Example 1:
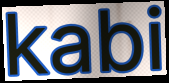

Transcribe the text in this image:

kabi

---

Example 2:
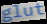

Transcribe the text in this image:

glut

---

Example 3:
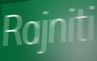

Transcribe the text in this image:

Rajniti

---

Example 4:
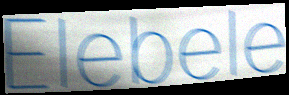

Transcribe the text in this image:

Elebele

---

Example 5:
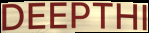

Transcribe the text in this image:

DEEPTHI